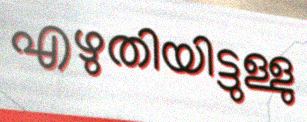
എഴുതിയിട്ടുള്ളു